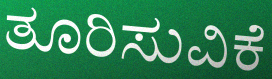
ತೂರಿಸುವಿಕೆ